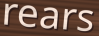
rears